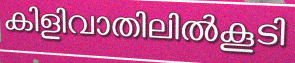
കിളിവാതിലിൽകൂടി